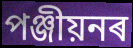
পঞ্জীয়নৰ